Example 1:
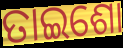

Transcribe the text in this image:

ତାଇଶୋ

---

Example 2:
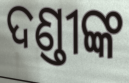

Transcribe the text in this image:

ଦଣ୍ଡୀଙ୍କ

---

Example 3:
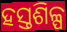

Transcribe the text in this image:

ହସ୍ତଶିଳ୍ପ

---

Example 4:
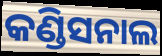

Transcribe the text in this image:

କଣ୍ଡିସନାଲ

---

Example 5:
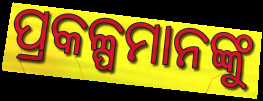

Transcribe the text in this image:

ପ୍ରକଳ୍ପମାନଙ୍କୁ